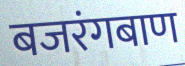
बजरंगबाण